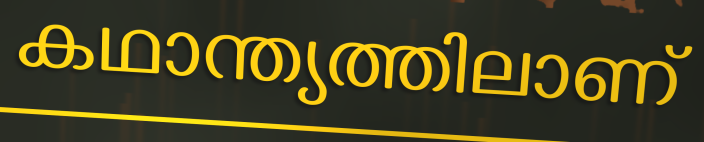
കഥാന്ത്യത്തിലാണ്